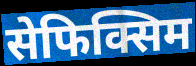
सेफिक्सिम